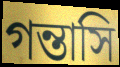
গন্তাসি